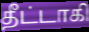
தீட்டாகி